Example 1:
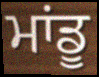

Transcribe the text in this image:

ਮਾਂਡੂ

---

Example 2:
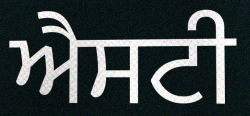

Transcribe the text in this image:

ਐਸਟੀ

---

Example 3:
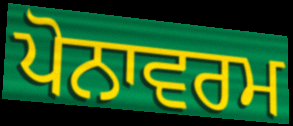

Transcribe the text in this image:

ਪੋਨਾਵਰਮ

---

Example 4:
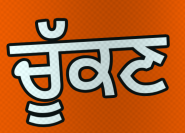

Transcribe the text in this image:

ਚੂੱਕਣ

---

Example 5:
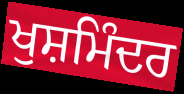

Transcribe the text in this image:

ਖੁਸ਼ਮਿੰਦਰ